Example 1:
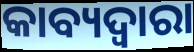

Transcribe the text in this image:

କାବ୍ୟଦ୍ୱାରା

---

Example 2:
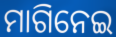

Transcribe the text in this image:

ମାଗିନେଇ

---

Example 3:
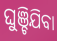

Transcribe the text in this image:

ଘୁଞ୍ଚିଯିବା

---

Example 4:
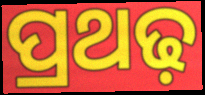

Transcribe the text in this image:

ପ୍ରଥଢ଼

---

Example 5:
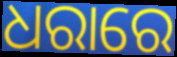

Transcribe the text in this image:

ଧରାରେ